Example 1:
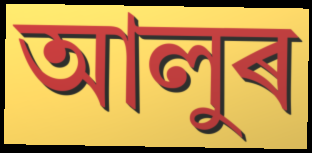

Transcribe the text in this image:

আলুৰ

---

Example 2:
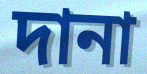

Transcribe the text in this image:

দানা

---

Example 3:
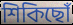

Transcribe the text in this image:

শিকিছোঁ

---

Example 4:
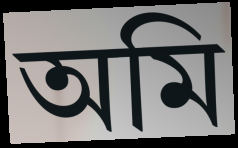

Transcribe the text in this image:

অমি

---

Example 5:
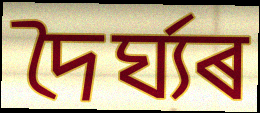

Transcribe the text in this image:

দৈৰ্ঘ্যৰ